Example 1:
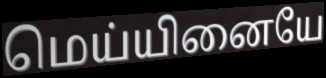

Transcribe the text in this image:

மெய்யினையே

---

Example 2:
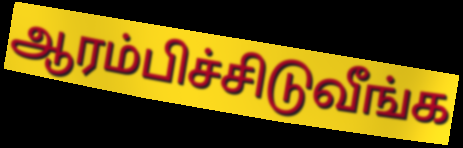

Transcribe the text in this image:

ஆரம்பிச்சிடுவீங்க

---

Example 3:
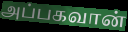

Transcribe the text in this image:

அப்பகவான்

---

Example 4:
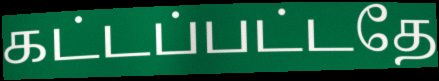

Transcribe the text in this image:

கட்டப்பட்டதே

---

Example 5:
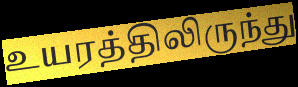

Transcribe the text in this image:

உயரத்திலிருந்து